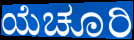
ಯೆಚೂರಿ